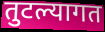
तुटल्यागत